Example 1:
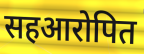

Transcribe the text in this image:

सहआरोपित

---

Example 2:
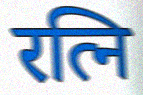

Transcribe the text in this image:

रत्नि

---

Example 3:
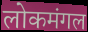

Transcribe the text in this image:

लोकमंगल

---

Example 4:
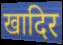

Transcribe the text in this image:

खादिर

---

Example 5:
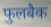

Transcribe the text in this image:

फुलबैक